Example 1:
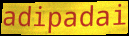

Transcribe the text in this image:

adipadai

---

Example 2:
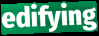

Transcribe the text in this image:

edifying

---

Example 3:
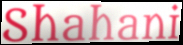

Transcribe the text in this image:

Shahani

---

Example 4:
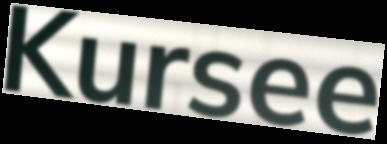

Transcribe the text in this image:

Kursee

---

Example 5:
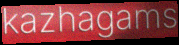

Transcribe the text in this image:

kazhagams